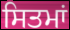
ਸਿਤਮਾਂ